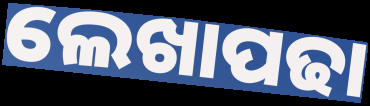
ଲେଖାପଢା